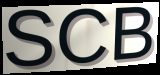
SCB